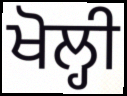
ਖੋਲ੍ਹੀ